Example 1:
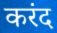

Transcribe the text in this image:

करंद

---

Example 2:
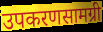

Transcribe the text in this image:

उपकरणसामग्री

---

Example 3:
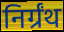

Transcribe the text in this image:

निर्ग्रंथ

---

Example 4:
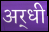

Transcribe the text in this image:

अर्धी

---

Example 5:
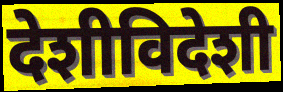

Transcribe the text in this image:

देशीविदेशी